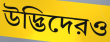
উদ্ভিদেরও